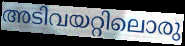
അടിവയറ്റിലൊരു